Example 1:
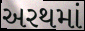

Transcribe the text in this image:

અરથમાં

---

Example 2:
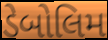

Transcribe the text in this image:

ડેબોલિમ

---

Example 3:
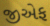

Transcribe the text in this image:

જીએફ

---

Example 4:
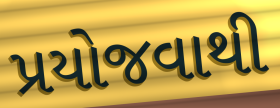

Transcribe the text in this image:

પ્રયોજવાથી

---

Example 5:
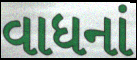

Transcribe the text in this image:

વાધનાં